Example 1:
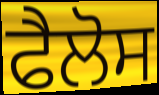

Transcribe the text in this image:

ਫੈਲੋਸ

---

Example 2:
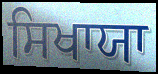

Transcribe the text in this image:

ਸਿਖਾਯਾ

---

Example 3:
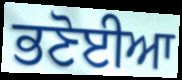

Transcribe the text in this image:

ਭਣੋਈਆ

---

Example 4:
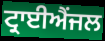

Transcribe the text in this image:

ਟ੍ਰਾਈਐਂਜਲ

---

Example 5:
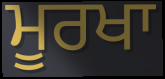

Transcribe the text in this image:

ਮੂਰਖਾ